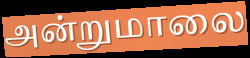
அன்றுமாலை